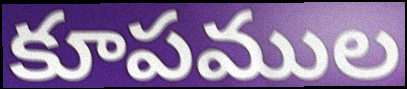
కూపముల